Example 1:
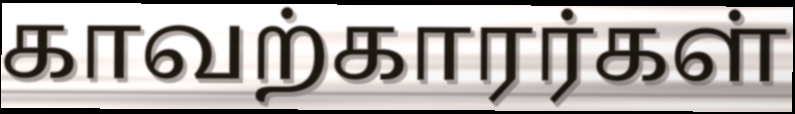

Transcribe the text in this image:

காவற்காரர்கள்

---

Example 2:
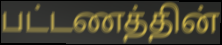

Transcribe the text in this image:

பட்டணத்தின்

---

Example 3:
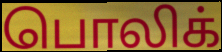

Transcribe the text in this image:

பொலிக்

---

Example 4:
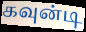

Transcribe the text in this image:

கவுன்டி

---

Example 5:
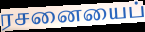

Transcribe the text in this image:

ரசனையைப்